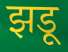
झडू